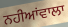
ਨਹੀਆਂਵਾਲਾ